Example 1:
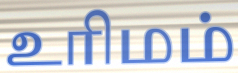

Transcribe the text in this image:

உரிமம்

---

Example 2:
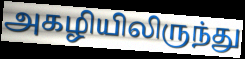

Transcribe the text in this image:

அகழியிலிருந்து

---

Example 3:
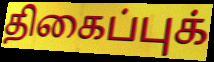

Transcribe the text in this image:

திகைப்புக்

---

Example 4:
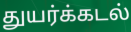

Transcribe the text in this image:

துயர்க்கடல்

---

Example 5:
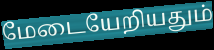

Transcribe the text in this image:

மேடையேறியதும்